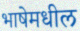
भाषेमधील